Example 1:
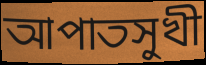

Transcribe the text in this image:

আপাতসুখী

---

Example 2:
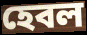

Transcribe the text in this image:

হেবল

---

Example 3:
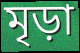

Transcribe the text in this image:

মৃড়া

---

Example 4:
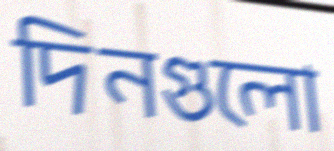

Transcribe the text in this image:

দিনগুলো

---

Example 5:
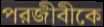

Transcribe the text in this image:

পরজীবীকে